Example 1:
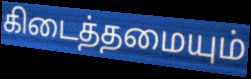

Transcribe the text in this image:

கிடைத்தமையும்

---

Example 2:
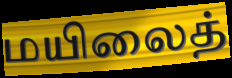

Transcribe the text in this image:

மயிலைத்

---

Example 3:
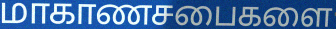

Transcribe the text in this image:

மாகாணசபைகளை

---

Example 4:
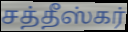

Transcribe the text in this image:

சத்தீஸ்கர்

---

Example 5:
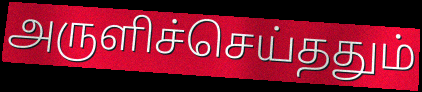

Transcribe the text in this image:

அருளிச்செய்ததும்